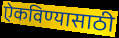
ऐकविण्यासाठी